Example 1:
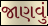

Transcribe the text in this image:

જાણવું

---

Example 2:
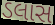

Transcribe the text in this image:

ડલાસ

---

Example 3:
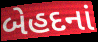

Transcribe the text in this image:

બેહદનાં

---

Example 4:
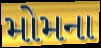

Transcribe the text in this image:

મોમના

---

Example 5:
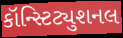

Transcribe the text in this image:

કૉન્સ્ટિટ્યુશનલ